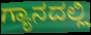
ಗ್ಯಾನದಲ್ಲಿ